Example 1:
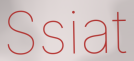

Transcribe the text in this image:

Ssiat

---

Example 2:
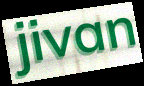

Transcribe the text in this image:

jivan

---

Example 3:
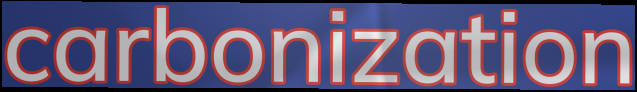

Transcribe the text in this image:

carbonization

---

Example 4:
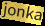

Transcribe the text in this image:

jonka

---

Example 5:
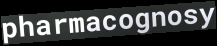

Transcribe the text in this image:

pharmacognosy